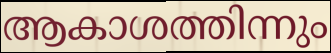
ആകാശത്തിന്നും